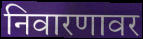
निवारणावर